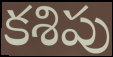
కశిపు